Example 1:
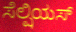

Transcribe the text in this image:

ಸೆಲ್ಷಿಯಸ್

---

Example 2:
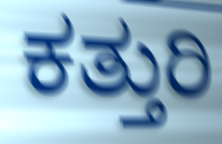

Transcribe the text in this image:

ಕತ್ತುರಿ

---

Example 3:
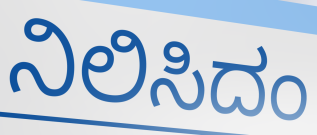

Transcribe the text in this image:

ನಿಲಿಸಿದಂ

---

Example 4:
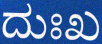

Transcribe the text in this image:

ದುಃಖ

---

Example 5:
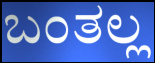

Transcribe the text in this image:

ಬಂತಲ್ಲ